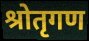
श्रोतृगण